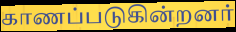
காணப்படுகின்றனர்